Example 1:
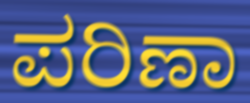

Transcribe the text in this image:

ಪರಿಣಾ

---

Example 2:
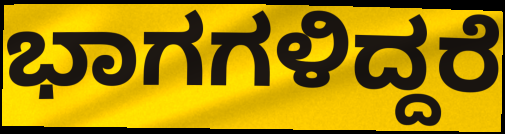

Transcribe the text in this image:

ಭಾಗಗಳಿದ್ದರೆ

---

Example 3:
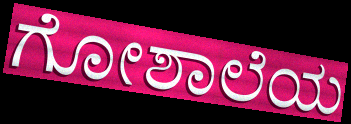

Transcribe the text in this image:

ಗೋಶಾಲೆಯ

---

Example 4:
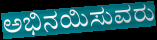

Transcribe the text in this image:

ಅಭಿನಯಿಸುವರು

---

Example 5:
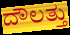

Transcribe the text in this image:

ದೌಲತ್ತು